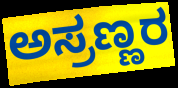
ಅಸ್ರಣ್ಣರ